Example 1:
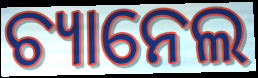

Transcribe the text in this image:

ଚ୍ୟାନେଲ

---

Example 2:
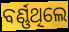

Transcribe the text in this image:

ବର୍ଣ୍ଣଥିଲେ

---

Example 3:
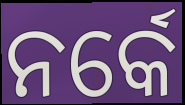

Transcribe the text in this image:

ନର୍କେ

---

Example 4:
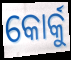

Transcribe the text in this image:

କୋର୍କୁ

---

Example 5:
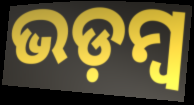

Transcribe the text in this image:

ଭଡ଼ମ୍ବ